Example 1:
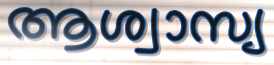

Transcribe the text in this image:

ആശ്വാസ്യ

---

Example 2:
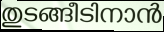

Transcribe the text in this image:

തുടങ്ങീടിനാൻ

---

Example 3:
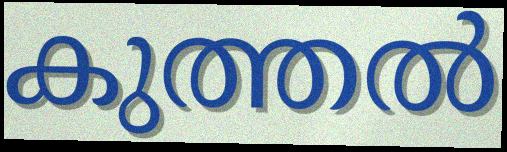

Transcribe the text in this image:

കുത്തൽ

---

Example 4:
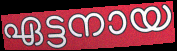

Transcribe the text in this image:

ഏട്ടനായ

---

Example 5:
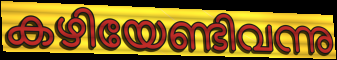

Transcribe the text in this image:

കഴിയേണ്ടിവന്നു